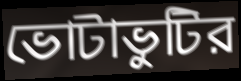
ভোটাভুটির